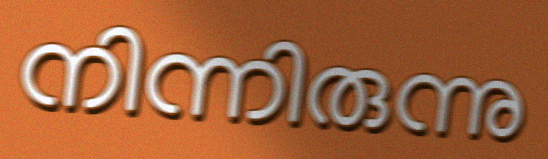
നിന്നിരുന്നു